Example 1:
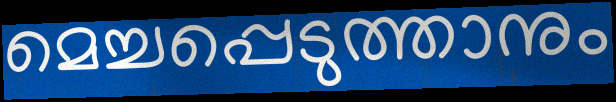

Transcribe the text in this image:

മെച്ചപ്പെടുത്താനും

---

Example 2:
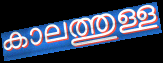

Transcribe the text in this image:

കാലത്തുള്ള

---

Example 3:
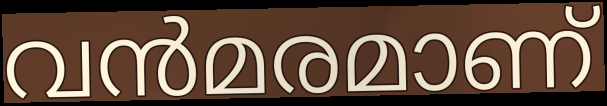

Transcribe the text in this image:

വൻമരമാണ്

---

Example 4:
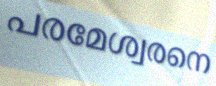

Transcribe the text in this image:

പരമേശ്വരനെ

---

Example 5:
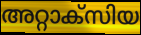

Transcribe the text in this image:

അറ്റാക്സിയ